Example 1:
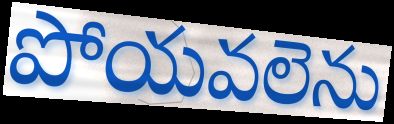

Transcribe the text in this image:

పోయవలెను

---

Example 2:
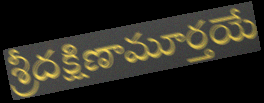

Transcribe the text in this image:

శ్రీదక్షిణామూర్తయే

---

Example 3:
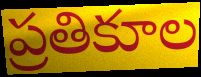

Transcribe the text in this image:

ప్రతికూల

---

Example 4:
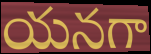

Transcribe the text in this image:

యనగా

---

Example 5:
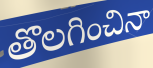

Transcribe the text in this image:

తొలగించినా